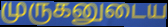
முருகனுடைய